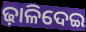
ଢ଼ାଳିଦେଇ